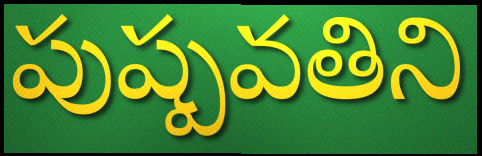
పుష్పవతిని